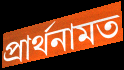
প্রার্থনামত